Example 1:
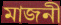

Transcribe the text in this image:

মাজনী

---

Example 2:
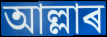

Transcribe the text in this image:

আল্লাৰ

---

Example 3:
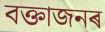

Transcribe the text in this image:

বক্তাজনৰ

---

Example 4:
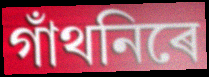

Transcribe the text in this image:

গাঁথনিৰে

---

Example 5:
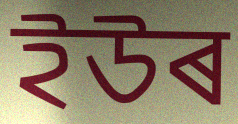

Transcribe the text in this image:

ইউৰ